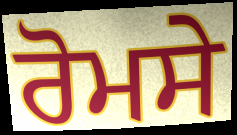
ਰੋਮਸੇ